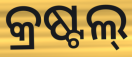
କ୍ରଷ୍ଟଲ୍